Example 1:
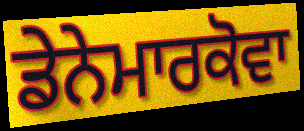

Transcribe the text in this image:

ਡੇਨੇਮਾਰਕੋਵਾ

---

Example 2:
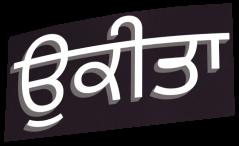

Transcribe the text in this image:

ਉਕੀਤਾ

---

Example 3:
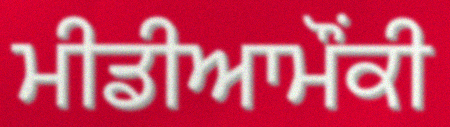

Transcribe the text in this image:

ਮੀਡੀਆਮੌਂਕੀ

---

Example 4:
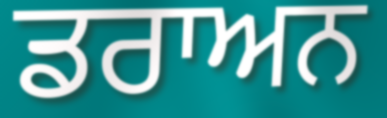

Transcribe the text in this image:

ਡਰਾਅਨ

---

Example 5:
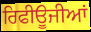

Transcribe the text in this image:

ਰਿਫੀਊਜੀਆਂ